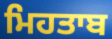
ਮਿਹਤਾਬ